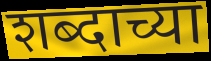
शब्दाच्या